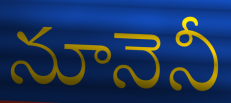
నూనెనీ